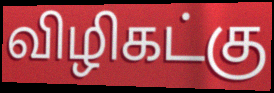
விழிகட்கு